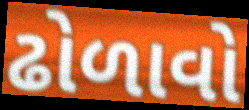
ઢોળાવો